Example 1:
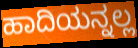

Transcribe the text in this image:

ಹಾದಿಯನ್ನಲ್ಲ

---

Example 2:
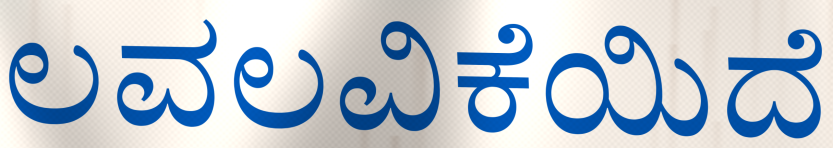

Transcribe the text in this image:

ಲವಲವಿಕೆಯಿದೆ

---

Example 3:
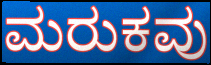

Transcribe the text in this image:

ಮರುಕವು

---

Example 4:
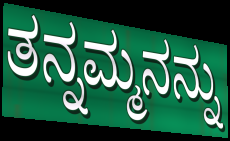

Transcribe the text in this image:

ತನ್ನಮ್ಮನನ್ನು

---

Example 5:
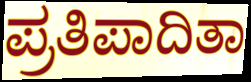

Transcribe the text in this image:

ಪ್ರತಿಪಾದಿತಾ